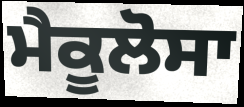
ਮੈਕੂਲੋਸਾ